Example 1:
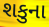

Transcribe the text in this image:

શકુના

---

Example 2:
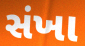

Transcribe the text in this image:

સંખા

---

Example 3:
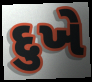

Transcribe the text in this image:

દુખે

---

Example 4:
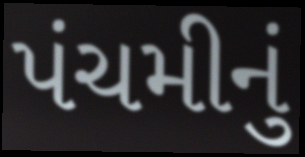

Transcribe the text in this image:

પંચમીનું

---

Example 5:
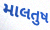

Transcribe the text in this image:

માલતુષ